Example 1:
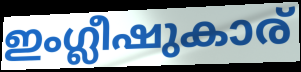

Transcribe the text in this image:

ഇംഗ്ലീഷുകാര്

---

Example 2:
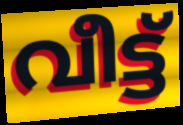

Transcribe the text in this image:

വീട്ട്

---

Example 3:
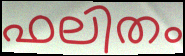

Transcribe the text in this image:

ഫലിതം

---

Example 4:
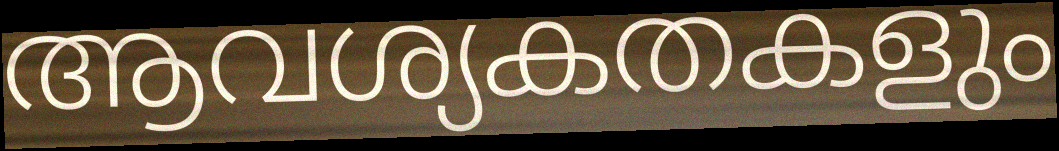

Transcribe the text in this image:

ആവശ്യകതകളും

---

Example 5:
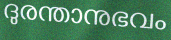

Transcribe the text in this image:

ദുരന്താനുഭവം